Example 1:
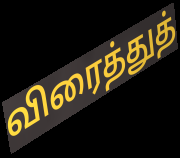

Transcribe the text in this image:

விரைத்துத்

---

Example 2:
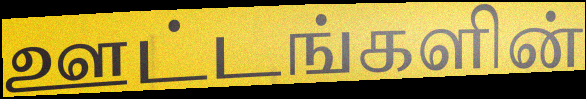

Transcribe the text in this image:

ஊட்டங்களின்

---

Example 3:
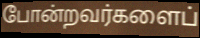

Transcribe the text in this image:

போன்றவர்களைப்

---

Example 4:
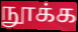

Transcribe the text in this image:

நூக்க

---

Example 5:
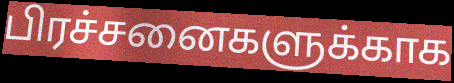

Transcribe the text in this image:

பிரச்சனைகளுக்காக